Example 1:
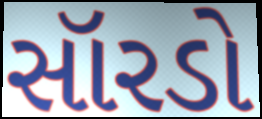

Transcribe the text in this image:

સૉરડો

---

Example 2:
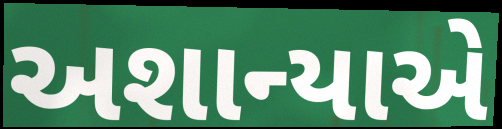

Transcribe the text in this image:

અશાન્યાએ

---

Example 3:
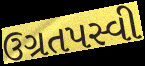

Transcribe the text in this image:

ઉગ્રતપસ્વી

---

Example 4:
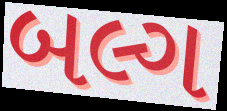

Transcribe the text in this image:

બલ્ગ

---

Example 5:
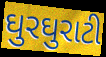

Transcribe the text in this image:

ઘુરઘુરાટી